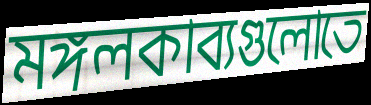
মঙ্গলকাব্যগুলোতে